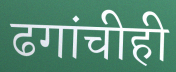
ढगांचीही